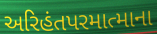
અરિહંતપરમાત્માના